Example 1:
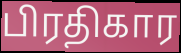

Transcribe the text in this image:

பிரதிகார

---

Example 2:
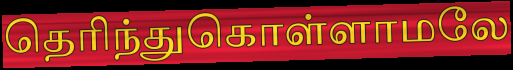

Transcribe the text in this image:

தெரிந்துகொள்ளாமலே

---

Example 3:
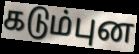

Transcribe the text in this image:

கடும்புன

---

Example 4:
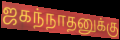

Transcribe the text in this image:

ஜகந்நாதனுக்கு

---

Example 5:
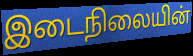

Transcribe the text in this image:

இடைநிலையின்